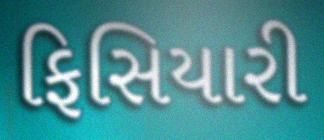
ફિસિયારી